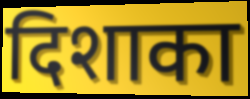
दिशाका